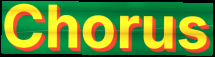
Chorus